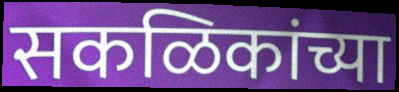
सकळिकांच्या